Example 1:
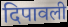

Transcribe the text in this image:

दिपावली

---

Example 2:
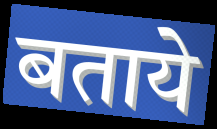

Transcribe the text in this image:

बताये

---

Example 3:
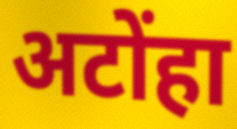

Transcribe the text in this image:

अटोंहा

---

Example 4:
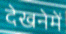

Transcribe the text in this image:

देखनेमें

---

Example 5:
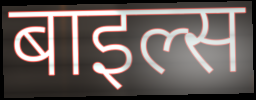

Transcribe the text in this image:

बाइल्स